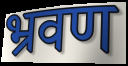
भ्रवण